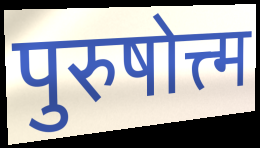
पुरुषोत्त्म